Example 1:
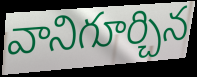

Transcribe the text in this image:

వానిగూర్చిన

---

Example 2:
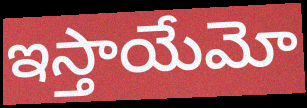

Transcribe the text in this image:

ఇస్తాయేమో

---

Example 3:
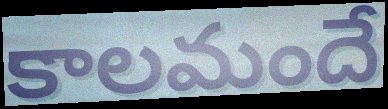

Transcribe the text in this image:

కాలమందే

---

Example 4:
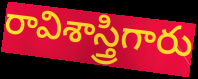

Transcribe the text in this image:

రావిశాస్త్రిగారు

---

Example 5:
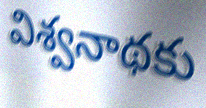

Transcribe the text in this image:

విశ్వనాథకు